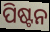
ପିଷ୍ଟନ